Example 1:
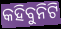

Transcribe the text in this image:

କହିବୁନିଟି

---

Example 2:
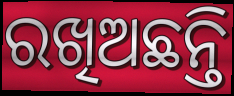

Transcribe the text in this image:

ରଖିଅଛନ୍ତି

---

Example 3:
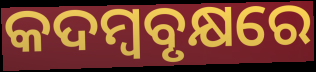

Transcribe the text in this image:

କଦମ୍ୱବୃକ୍ଷରେ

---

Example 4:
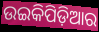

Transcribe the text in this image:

ଉଇକିପିଡ଼ିଆର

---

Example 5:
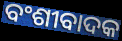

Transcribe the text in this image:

ବଂଶୀବାଦକ